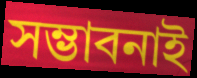
সম্ভাবনাই